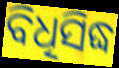
ବିଧିସିଦ୍ଧ